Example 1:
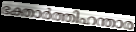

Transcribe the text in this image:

ഭക്താർത്തിഹന്താര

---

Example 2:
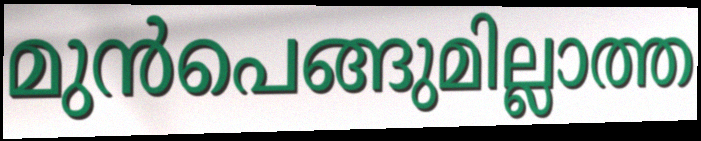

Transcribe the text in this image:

മുൻപെങ്ങുമില്ലാത്ത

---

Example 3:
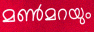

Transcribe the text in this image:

മൺമറയും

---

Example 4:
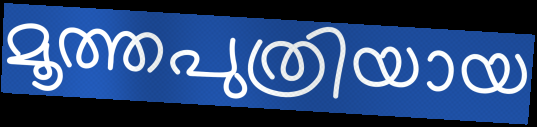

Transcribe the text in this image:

മൂത്തപുത്രിയായ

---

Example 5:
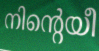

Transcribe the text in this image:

നിന്റെയീ